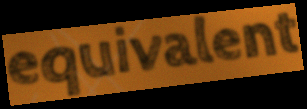
equivalent